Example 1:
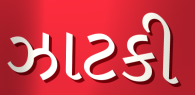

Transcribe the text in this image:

ઝાટકી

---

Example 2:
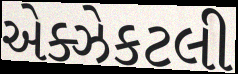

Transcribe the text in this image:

એક્ઝેકટલી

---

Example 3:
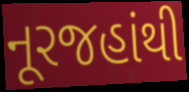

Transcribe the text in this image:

નૂરજહાંથી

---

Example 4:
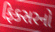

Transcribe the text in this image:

ફિક્સરનો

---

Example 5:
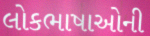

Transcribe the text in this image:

લોકભાષાઓની